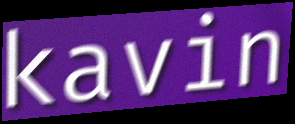
kavin